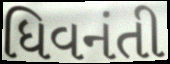
ધિવનંતી